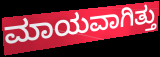
ಮಾಯವಾಗಿತ್ತು